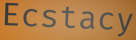
Ecstacy